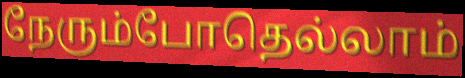
நேரும்போதெல்லாம்